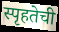
स्पृहतेची